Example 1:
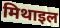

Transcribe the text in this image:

मिथाइल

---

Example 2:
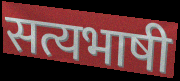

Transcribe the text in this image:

सत्यभाषी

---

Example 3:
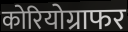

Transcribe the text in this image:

कोरियोग्राफर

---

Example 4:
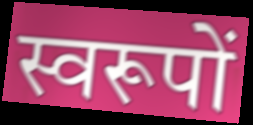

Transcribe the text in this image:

स्वरूपों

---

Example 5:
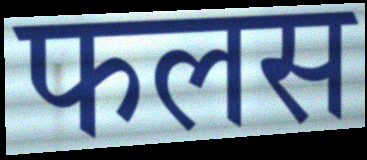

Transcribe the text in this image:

फलस